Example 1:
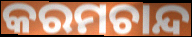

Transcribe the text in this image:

କରମଚାନ୍ଦ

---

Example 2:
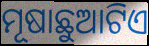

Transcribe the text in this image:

ମୂଷାଛୁଆଟିଏ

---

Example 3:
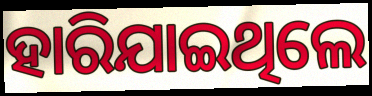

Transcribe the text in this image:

ହାରିଯାଇଥିଲେ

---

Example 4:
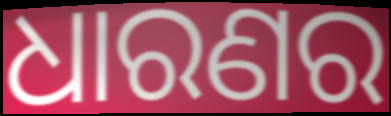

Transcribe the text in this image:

ଧାରଣର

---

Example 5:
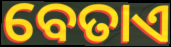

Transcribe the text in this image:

ବେତାଏ